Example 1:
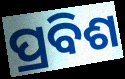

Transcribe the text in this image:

ପ୍ରବିଶ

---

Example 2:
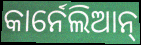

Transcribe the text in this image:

କାର୍ନେଲିଆନ୍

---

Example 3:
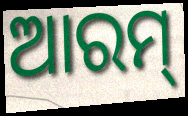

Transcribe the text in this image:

ଆରମ୍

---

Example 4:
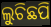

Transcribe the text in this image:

ଲୁଚିଛପି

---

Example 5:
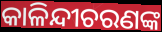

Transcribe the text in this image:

କାଳିନ୍ଦୀଚରଣଙ୍କ